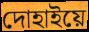
দোহাইয়ে